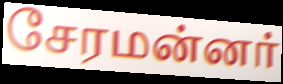
சேரமன்னர்